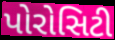
પોરોસિટી